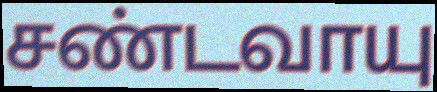
சண்டவாயு